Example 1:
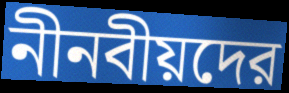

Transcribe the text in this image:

নীনবীয়দের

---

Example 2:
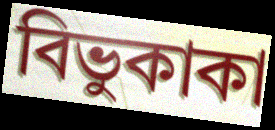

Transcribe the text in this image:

বিভুকাকা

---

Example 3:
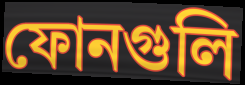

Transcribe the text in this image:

ফোনগুলি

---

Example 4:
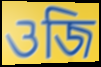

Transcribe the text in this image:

ওজি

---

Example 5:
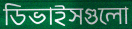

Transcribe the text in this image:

ডিভাইসগুলো